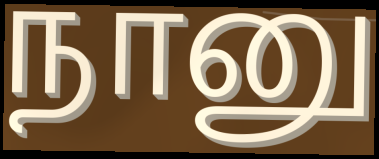
நானு